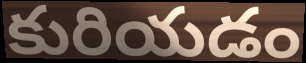
కురియడం